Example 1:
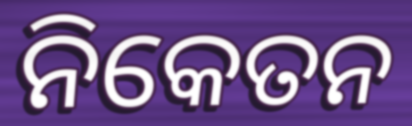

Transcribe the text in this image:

ନିକେତନ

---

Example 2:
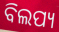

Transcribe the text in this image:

ବିଲପ୍ୟ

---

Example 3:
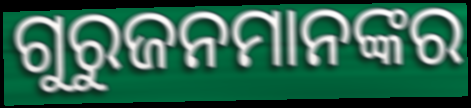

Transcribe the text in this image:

ଗୁରୁଜନମାନଙ୍କର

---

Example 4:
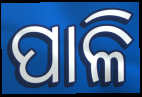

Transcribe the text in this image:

ପାଳି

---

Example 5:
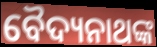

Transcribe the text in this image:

ବୈଦ୍ୟନାଥଙ୍କ